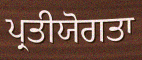
ਪ੍ਰਤੀਯੋਗਤਾ